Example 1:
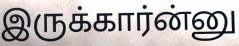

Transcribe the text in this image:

இருக்கார்ன்னு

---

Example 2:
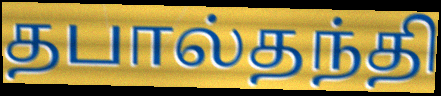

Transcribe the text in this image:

தபால்தந்தி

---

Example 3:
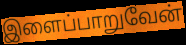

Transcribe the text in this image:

இளைப்பாறுவேன்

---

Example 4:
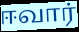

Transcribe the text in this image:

ஈவார்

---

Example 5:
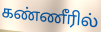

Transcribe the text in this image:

கண்ணீரில்